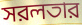
সরলতার